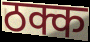
ठक्क